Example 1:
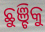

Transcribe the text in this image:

ଛୁଞ୍ଚିକୁ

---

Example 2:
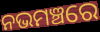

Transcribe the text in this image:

ନଭମଞ୍ଚରେ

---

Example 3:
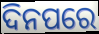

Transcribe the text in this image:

ଦିନପରେ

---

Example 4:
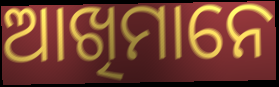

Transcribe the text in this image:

ଆଖିମାନେ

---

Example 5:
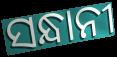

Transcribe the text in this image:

ସନ୍ଧାନୀ